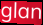
glan